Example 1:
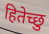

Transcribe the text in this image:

हितेच्छु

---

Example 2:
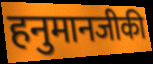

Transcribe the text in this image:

हनुमानजीकी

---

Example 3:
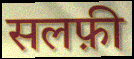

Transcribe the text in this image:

सलफ़ी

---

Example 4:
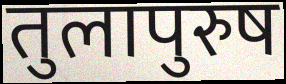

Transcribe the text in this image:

तुलापुरुष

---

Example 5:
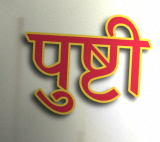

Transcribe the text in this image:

पुष्टी